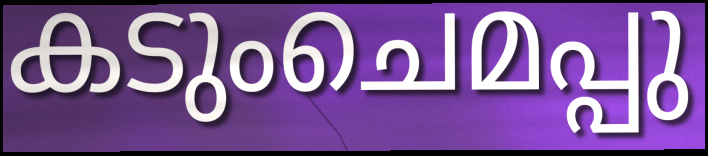
കടുംചെമപ്പു